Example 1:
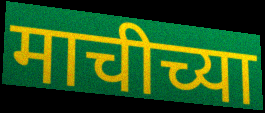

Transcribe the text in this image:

माचीच्या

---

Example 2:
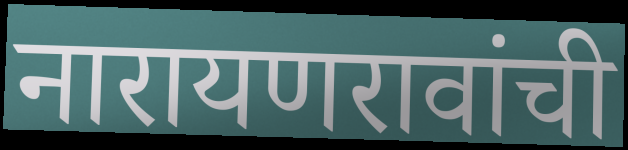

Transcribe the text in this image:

नारायणरावांची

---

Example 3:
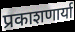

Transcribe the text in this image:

प्रकाशणार्या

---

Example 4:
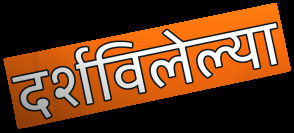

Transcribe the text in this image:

दर्शविलेल्या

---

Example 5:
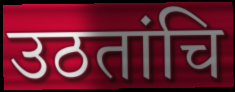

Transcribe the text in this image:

उठतांचि